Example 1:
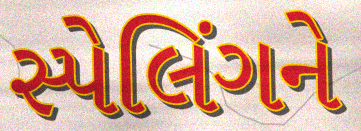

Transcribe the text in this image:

સ્પેલિંગને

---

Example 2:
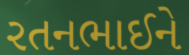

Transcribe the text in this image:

રતનભાઈને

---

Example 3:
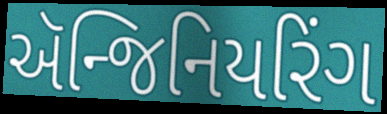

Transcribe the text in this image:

ઍન્જિનિયરિંગ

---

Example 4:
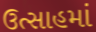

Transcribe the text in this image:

ઉત્સાહમાં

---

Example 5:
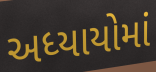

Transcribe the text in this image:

અધ્યાયોમાં